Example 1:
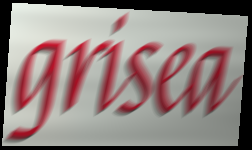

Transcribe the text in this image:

grisea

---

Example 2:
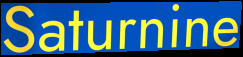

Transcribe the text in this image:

Saturnine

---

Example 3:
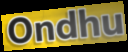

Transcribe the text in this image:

Ondhu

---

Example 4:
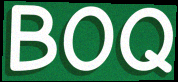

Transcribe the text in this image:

BOQ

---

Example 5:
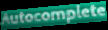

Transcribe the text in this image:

Autocomplete